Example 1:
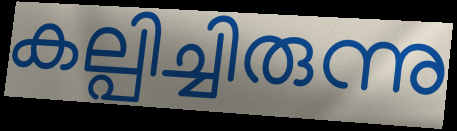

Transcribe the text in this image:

കല്പിച്ചിരുന്നു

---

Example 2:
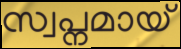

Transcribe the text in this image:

സ്വപ്നമായ്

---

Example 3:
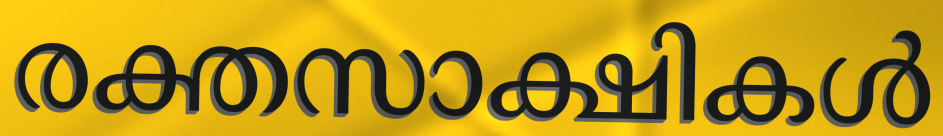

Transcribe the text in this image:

രക്തസാക്ഷികൾ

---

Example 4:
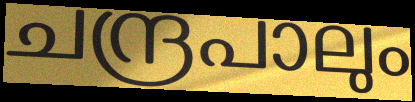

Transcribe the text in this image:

ചന്ദ്രപാലും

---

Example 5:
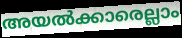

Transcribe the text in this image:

അയൽക്കാരെല്ലാം